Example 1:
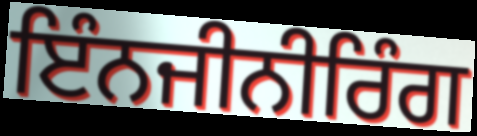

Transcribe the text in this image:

ਇੰਨਜੀਨੀਰਿੰਗ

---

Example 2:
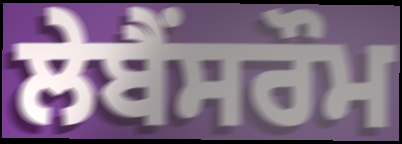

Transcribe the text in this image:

ਲੇਬੈਂਸਰੌਮ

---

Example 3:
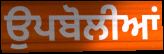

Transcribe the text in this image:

ਉਪਬੋਲੀਆਂ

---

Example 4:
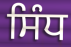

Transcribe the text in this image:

ਸਿੰਧ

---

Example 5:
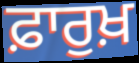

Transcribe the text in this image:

ਫ਼ਾਰੁਖ਼